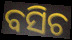
ବସିଚ